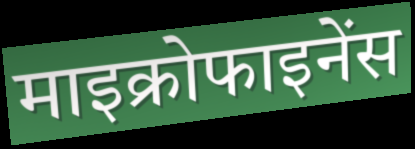
माइक्रोफाइनेंस